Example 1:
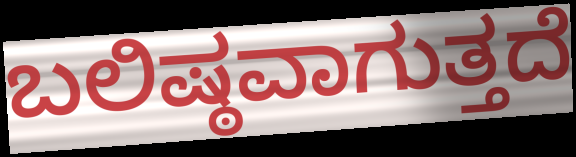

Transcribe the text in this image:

ಬಲಿಷ್ಠವಾಗುತ್ತದೆ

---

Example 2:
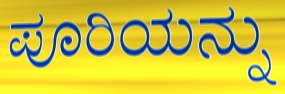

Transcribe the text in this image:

ಪೂರಿಯನ್ನು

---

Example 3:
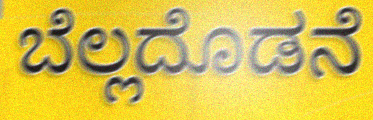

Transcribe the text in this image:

ಬೆಲ್ಲದೊಡನೆ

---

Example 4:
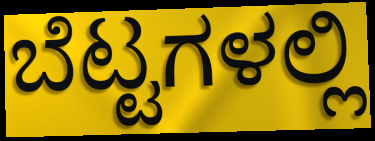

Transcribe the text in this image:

ಬೆಟ್ಟಗಳಲ್ಲಿ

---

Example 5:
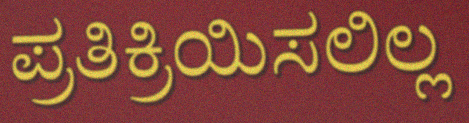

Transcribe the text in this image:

ಪ್ರತಿಕ್ರಿಯಿಸಲಿಲ್ಲ